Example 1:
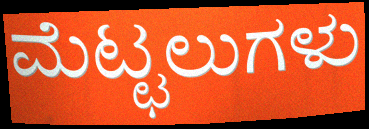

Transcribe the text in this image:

ಮೆಟ್ಟಲುಗಳು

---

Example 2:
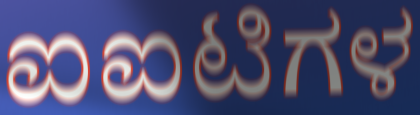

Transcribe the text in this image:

ಐಐಟಿಗಳ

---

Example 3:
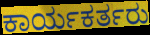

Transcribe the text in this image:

ಕಾರ್ಯಕರ್ತರು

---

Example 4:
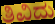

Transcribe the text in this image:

ತಿವಿದು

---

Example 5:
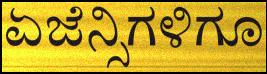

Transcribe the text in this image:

ಏಜೆನ್ಸಿಗಳಿಗೂ